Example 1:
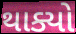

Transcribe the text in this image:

થાક્યો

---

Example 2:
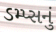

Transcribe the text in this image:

ડમ્પ્સનું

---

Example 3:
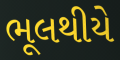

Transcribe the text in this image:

ભૂલથીયે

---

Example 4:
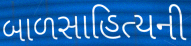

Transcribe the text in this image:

બાળસાહિત્યની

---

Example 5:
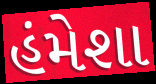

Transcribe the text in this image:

હંમેશા